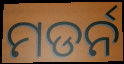
ମଡର୍ନ